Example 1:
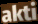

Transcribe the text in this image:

akti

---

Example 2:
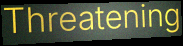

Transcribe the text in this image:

Threatening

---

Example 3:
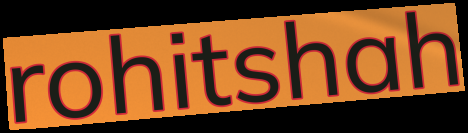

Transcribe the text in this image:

rohitshah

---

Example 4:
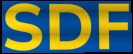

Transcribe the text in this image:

SDF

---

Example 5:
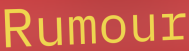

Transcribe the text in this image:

Rumour